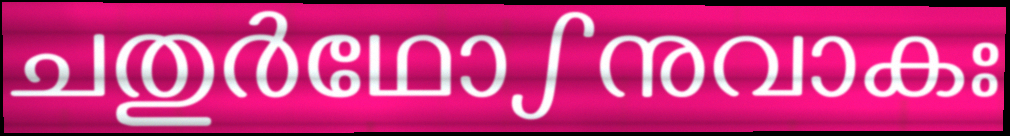
ചതുർഥോഽനുവാകഃ